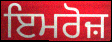
ਇਮਰੋਜ਼